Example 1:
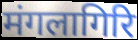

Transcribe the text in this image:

मंगलागिरि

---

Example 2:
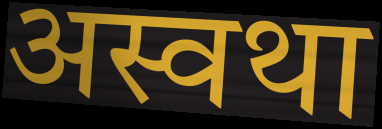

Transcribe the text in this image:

अस्वथा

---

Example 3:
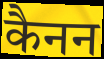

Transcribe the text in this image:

कैनन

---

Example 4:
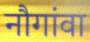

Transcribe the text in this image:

नौगांवा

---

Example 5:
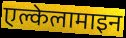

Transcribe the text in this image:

एल्केलामाइन